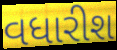
વધારીશ